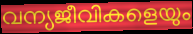
വന്യജീവികളെയും